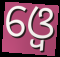
ଓ୍ବେ